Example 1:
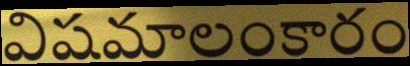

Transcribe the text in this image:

విషమాలంకారం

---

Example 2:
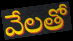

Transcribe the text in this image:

వేలతో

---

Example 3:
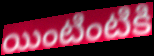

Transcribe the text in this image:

యింటింటికి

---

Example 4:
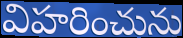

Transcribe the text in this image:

విహరించును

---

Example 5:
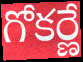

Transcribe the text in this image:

గోకర్ణే